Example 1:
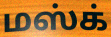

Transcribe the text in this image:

மஸ்க்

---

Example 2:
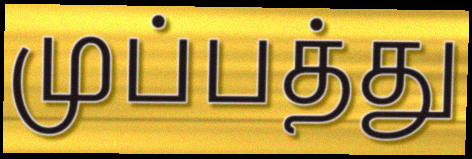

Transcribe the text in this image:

முப்பத்து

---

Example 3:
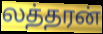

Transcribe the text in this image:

லத்தரன்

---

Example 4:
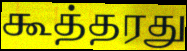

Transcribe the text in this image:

கூத்தரது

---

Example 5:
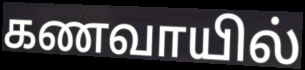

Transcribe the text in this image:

கணவாயில்